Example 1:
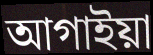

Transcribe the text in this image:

আগাইয়া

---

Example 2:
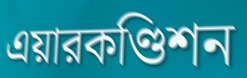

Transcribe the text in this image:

এয়ারকণ্ডিশন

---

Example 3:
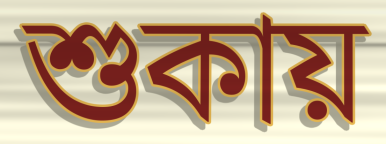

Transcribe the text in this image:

শুকায়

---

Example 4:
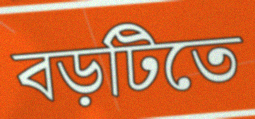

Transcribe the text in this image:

বড়টিতে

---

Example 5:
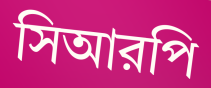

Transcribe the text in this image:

সিআরপি